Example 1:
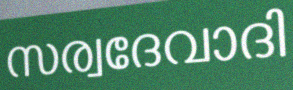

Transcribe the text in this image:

സര്വദേവാദി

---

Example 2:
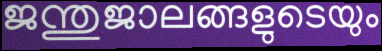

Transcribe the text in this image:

ജന്തുജാലങ്ങളുടെയും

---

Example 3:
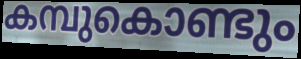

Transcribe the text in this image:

കമ്പുകൊണ്ടും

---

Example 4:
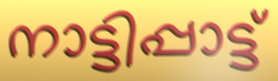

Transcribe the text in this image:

നാട്ടിപ്പാട്ട്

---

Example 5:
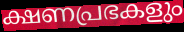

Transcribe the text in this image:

ക്ഷണപ്രഭകളും